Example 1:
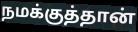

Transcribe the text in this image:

நமக்குத்தான்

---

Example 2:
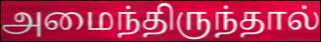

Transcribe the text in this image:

அமைந்திருந்தால்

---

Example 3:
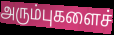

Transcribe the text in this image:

அரும்புகளைச்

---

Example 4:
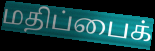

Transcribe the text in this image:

மதிப்பைக்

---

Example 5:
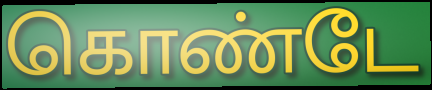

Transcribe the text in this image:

கொண்டே